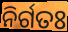
ନିର୍ଗତଃ